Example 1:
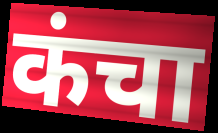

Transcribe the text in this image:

कंचा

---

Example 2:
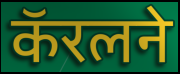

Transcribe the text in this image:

कॅरलने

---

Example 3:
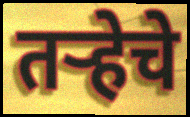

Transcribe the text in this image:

तर्‍हेचे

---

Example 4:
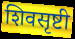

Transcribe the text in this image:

शिवसृष्टी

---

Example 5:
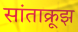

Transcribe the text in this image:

सांताक्रूझ